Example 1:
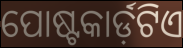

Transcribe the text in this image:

ପୋଷ୍ଟକାର୍ଡ଼ଟିଏ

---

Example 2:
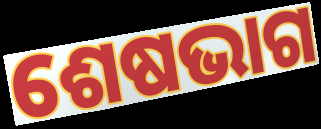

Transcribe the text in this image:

ଶେଷଭାଗ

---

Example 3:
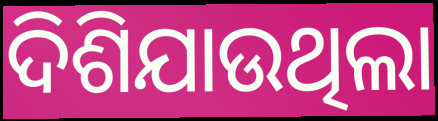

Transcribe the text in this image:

ଦିଶିଯାଉଥିଲା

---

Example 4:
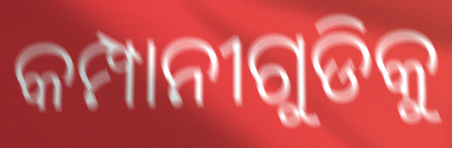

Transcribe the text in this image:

କମ୍ପାନୀଗୁଡିକୁ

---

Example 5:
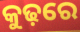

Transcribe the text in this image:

କୁଢ଼ରେ